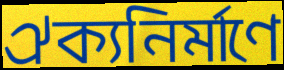
ঐক্যনির্মাণে